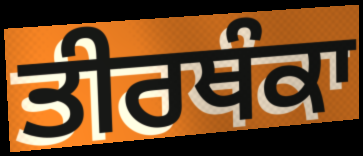
ਤੀਰਥੰਕਾ